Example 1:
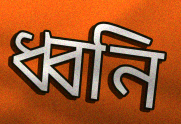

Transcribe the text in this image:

ধ্বনি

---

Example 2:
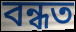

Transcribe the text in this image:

বন্ধত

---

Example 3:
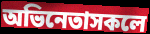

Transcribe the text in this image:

অভিনেতাসকলে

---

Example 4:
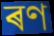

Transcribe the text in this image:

ৰণ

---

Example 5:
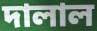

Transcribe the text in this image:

দালাল